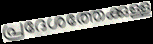
പ്രദേശത്തേക്കുള്ള